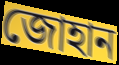
জোহান